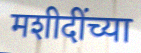
मशीदींच्या